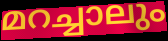
മറച്ചാലും